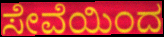
ಸೇವೆಯಿಂದ